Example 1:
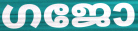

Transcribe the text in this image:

ഗജോ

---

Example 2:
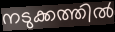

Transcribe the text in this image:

നടുക്കത്തിൽ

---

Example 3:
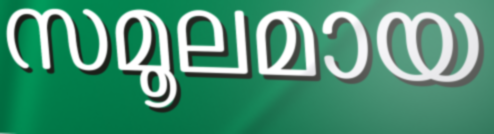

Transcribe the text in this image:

സമൂലമായ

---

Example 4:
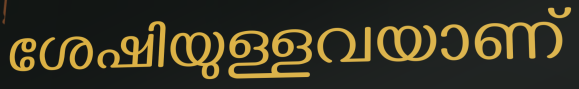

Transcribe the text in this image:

ശേഷിയുള്ളവയാണ്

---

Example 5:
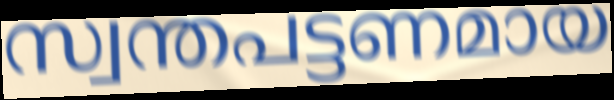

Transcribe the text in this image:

സ്വന്തപട്ടണമായ